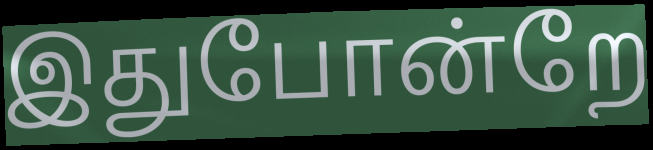
இதுபோன்றே